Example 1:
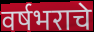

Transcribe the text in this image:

वर्षभराचे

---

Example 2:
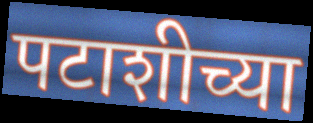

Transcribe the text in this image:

पटाशीच्या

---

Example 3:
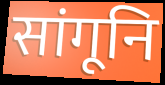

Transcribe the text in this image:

सांगूनि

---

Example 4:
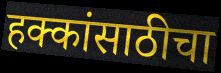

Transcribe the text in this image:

हक्कांसाठीचा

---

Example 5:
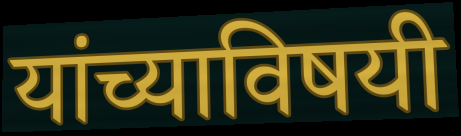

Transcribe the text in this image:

यांच्याविषयी